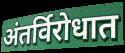
अंतर्विरोधात